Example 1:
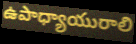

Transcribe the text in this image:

ఉపాధ్యాయురాలి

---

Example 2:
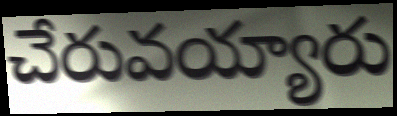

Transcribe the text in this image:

చేరువయ్యారు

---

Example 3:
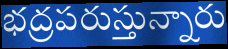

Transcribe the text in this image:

భద్రపరుస్తున్నారు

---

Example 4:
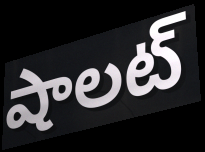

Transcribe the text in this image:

షాలట్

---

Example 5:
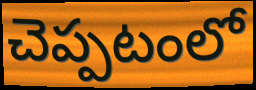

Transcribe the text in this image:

చెప్పటంలో